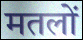
मतलों